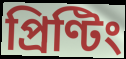
প্ৰিণ্টিং